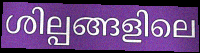
ശില്പങ്ങളിലെ